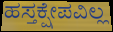
ಹಸ್ತಕ್ಷೇಪವಿಲ್ಲ